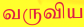
வருவிய